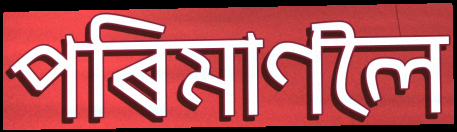
পৰিমাণলৈ